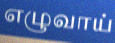
எழுவாய்